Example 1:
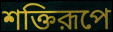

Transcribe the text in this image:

শক্তিরূপে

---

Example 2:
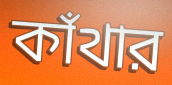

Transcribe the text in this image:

কাঁথার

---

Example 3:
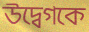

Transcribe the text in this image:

উদ্বেগকে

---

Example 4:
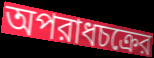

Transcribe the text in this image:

অপরাধচক্রের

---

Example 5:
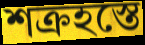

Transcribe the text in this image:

শক্রহস্তে